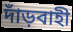
দাঁড়বাহী